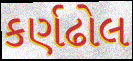
કર્ણઢોલ